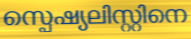
സ്പെഷ്യലിസ്റ്റിനെ